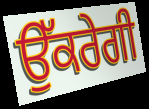
ਉੱਕਰੇਗੀ